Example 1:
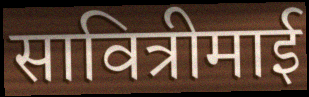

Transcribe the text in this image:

सावित्रीमाई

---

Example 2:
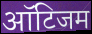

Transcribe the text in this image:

ऑटिजम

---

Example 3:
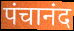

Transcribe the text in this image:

पंचानंद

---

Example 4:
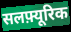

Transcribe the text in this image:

सलफ़्यूरिक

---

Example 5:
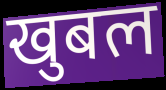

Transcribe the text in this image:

खुबल